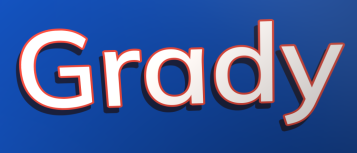
Grady